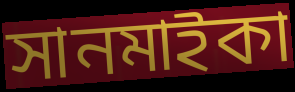
সানমাইকা